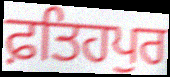
ਫ਼ਤਿਹਪੁਰ